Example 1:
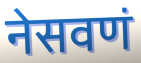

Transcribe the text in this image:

नेसवणं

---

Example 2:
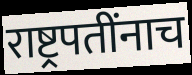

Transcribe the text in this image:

राष्ट्रपतींनाच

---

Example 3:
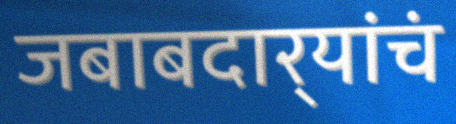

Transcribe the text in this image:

जबाबदार्‍यांचं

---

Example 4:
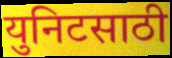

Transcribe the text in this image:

युनिटसाठी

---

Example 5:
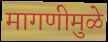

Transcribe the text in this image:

मागणीमुळे